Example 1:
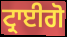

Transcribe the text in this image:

ਟ੍ਰਾਈਗੋ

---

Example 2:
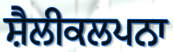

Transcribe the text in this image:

ਸ਼ੈਲੀਕਲਪਨਾ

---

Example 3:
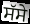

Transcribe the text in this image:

ਸੱਸੇ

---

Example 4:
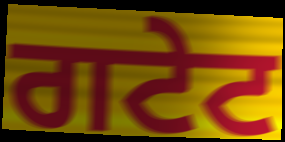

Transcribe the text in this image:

ਗਟੇਟ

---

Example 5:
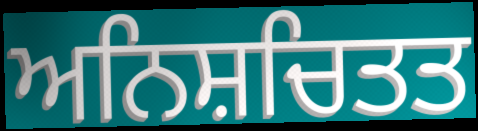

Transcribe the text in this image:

ਅਨਿਸ਼ਚਿਤਤ